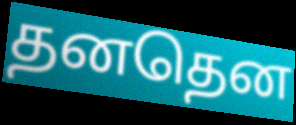
தனதென